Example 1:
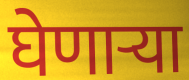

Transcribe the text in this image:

घेणाऱ्या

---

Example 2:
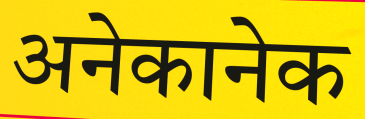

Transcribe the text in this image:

अनेकानेक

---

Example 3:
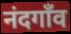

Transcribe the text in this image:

नंदगाँव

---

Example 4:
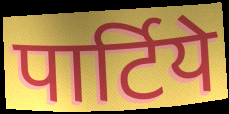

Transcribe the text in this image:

पार्टिये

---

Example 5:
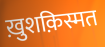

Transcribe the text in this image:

ख़ुशक़िस्मत